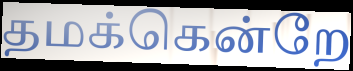
தமக்கென்றே